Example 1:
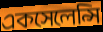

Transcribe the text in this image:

একসেলেন্সি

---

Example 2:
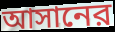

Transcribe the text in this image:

আসানের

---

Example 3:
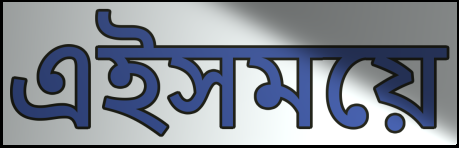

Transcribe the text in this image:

এইসময়ে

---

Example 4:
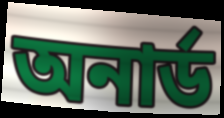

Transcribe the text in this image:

অনার্ড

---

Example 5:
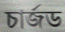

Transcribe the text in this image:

চার্জড